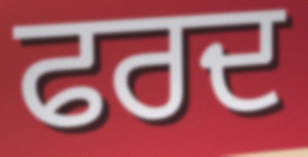
ਫਰਦ